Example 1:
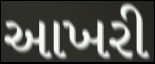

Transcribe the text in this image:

આખરી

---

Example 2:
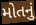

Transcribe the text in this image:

મોતનું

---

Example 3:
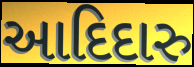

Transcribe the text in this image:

આદિદારુ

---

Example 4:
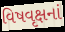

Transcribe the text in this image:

વિષવૃક્ષનાં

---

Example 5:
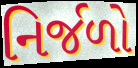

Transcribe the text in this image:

નિર્જળો